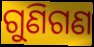
ଗୁଣିଗଣ